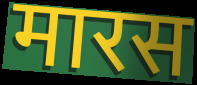
मारस